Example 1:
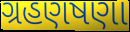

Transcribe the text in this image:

ગ્રહણષણા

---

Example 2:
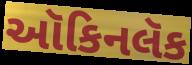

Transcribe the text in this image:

ઑકિનલૅક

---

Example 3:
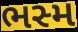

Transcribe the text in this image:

ભસ્મ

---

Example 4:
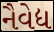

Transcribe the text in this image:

નૈવેદ્ય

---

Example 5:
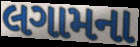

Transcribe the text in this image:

લગામના